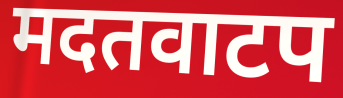
मदतवाटप